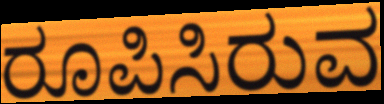
ರೂಪಿಸಿರುವ